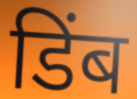
डिंब